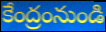
కేంద్రంనుండి